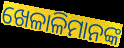
ଖେଳାଳିମାନଙ୍କ